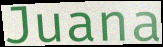
Juana